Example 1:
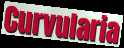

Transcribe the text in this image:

Curvularia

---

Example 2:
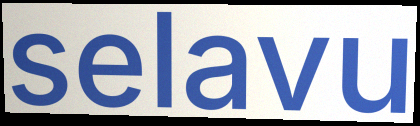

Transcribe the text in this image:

selavu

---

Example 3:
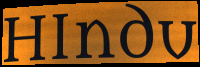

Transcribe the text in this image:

HIndu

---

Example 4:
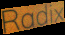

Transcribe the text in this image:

Radix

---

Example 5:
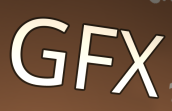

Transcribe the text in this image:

GFX